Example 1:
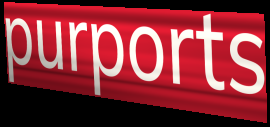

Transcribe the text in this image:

purports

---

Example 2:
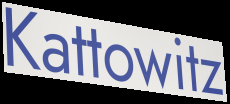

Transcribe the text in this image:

Kattowitz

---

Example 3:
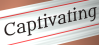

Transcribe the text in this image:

Captivating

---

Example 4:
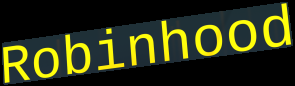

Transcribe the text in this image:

Robinhood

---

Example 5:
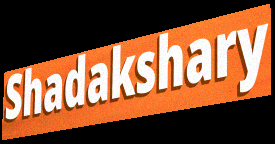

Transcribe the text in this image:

Shadakshary